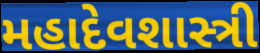
મહાદેવશાસ્ત્રી